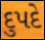
દુપદે